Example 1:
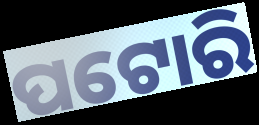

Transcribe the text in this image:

ପଟୋରି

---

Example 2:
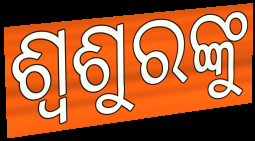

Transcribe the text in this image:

ଶ୍ୱଶୁରଙ୍କୁ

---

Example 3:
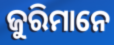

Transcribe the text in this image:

ଜୁରିମାନେ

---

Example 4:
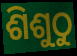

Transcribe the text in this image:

ଶିଶୁଠୁ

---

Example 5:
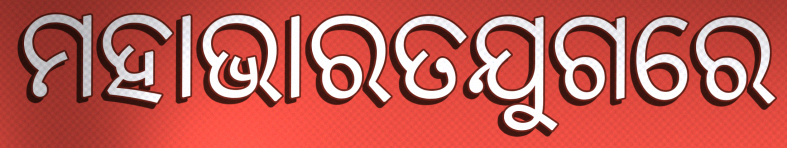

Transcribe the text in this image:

ମହାଭାରତଯୁଗରେ